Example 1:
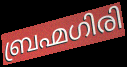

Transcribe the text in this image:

ബ്രഹ്മഗിരി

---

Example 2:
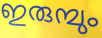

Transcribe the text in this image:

ഇരുമ്പും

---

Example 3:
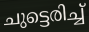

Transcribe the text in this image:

ചുട്ടെരിച്ച്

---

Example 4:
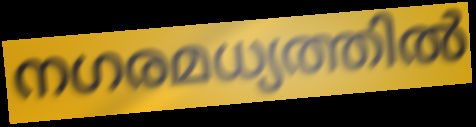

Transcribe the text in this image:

നഗരമധ്യത്തിൽ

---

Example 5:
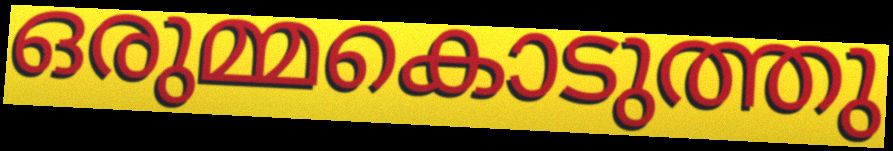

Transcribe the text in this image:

ഒരുമ്മകൊടുത്തു